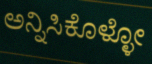
ಅನ್ನಿಸಿಕೊಳ್ಳೋ